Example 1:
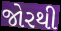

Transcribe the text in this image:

જોરથી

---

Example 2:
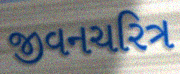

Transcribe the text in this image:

જીવનચરિત્ર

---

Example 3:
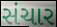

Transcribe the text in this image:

સંચાર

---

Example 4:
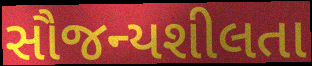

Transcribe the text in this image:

સૌજન્યશીલતા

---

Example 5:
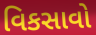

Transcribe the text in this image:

વિકસાવો